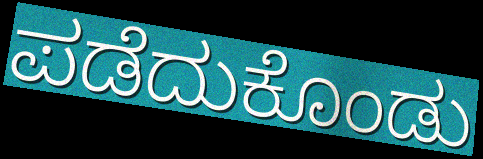
ಪಡೆದುಕೊಂಡು